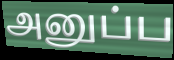
அனுப்ப